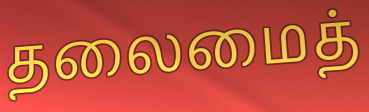
தலைமைத்